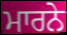
ਮਾਰਨੇ